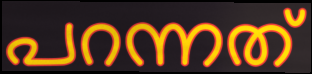
പറന്നത്